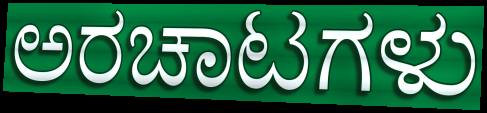
ಅರಚಾಟಗಳು